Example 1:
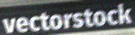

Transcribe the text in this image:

vectorstock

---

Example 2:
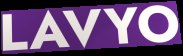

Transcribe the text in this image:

LAVYO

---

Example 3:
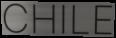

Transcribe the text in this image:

CHILE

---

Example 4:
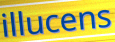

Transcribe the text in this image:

illucens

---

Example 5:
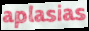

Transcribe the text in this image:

aplasias